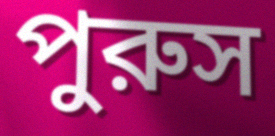
পুরুস